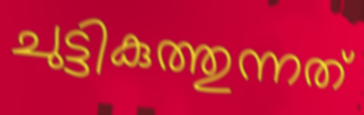
ചുട്ടികുത്തുന്നത്